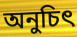
অনুচিৎ